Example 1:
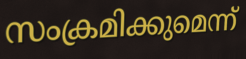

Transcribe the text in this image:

സംക്രമിക്കുമെന്ന്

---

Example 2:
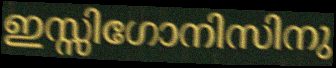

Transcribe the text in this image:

ഇസ്സിഗോനിസിനു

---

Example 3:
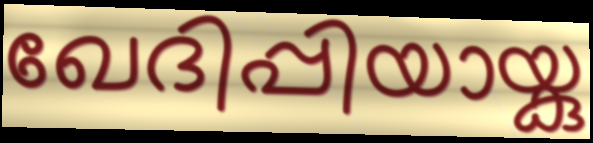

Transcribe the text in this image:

ഖേദിപ്പിയായ്കു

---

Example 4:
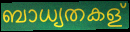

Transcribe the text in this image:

ബാധ്യതകള്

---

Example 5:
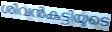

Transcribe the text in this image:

ശിവൻകുട്ടിയുടെ